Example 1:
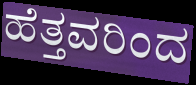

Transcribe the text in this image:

ಹೆತ್ತವರಿಂದ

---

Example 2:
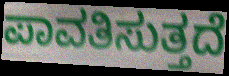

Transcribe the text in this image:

ಪಾವತಿಸುತ್ತದೆ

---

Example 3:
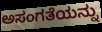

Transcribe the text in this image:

ಅಸಂಗತೆಯನ್ನು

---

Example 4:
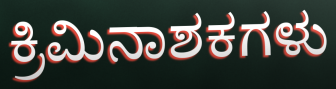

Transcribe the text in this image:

ಕ್ರಿಮಿನಾಶಕಗಳು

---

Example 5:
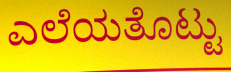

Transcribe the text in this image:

ಎಲೆಯತೊಟ್ಟು